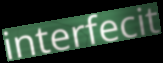
interfecit